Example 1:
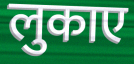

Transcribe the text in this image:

लुकाए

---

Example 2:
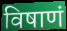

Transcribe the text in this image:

विषाणं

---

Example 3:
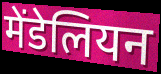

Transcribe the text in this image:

मेंडेलियन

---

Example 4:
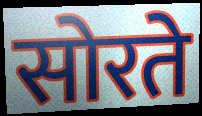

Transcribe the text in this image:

सोरते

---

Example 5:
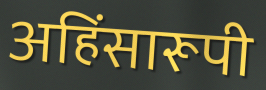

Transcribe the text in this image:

अहिंसारूपी